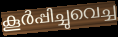
കൂർപ്പിച്ചുവെച്ച